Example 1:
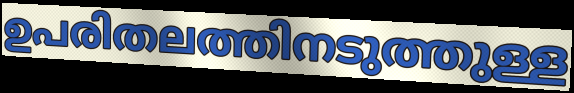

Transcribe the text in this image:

ഉപരിതലത്തിനടുത്തുള്ള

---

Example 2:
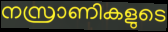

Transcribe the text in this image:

നസ്രാണികളുടെ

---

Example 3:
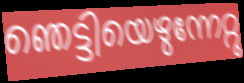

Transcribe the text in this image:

ഞെട്ടിയെഴുന്നേറ്റു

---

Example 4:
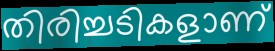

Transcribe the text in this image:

തിരിച്ചടികളാണ്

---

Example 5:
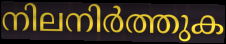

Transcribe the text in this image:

നിലനിർത്തുക